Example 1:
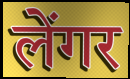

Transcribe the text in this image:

लेंगर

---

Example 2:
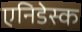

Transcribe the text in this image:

एनिडेस्क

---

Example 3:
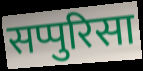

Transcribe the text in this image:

सप्पुरिसा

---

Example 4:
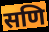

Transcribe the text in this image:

सणि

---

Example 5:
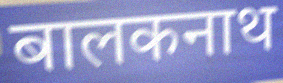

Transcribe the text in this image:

बालकनाथ